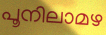
പൂനിലാമഴ